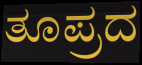
ತೂಪ್ರದ